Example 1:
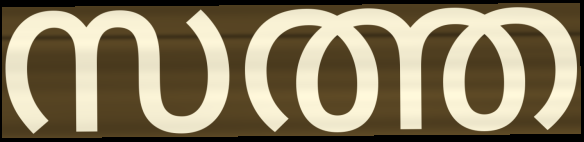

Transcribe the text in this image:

സത്ത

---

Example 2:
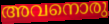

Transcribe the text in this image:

അവനൊരു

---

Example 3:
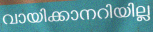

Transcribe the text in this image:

വായിക്കാനറിയില്ല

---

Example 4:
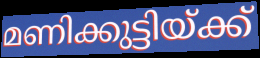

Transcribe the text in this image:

മണിക്കുട്ടിയ്ക്ക്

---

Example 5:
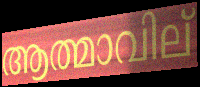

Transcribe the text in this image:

ആത്മാവില്